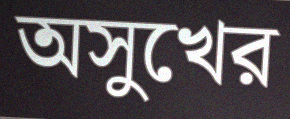
অসুখের